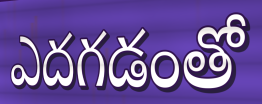
ఎదగడంతో